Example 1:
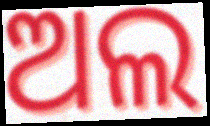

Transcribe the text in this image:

ଅଲ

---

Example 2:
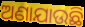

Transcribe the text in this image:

ଅଣାଯାଉଛି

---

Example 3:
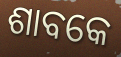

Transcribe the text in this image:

ଶାବକେ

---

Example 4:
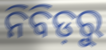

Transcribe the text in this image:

ନିବିଡ଼ରୁ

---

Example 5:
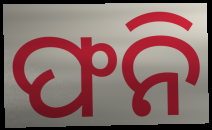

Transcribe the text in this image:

ଫନି